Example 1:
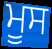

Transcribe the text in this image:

ਮੂਸ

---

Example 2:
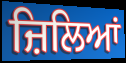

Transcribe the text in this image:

ਜ਼ਿਲਿਆਂ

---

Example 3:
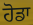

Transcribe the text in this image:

ਹੋਡਾ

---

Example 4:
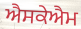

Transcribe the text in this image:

ਐਸਕੇਐਮ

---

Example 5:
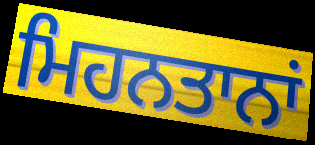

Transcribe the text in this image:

ਮਿਹਨਤਾਨਾਂ